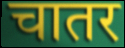
चातर